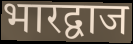
भारद्वाज